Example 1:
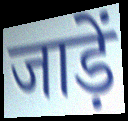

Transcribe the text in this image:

जाड़ें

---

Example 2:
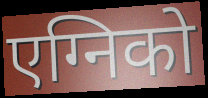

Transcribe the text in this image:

एग्निको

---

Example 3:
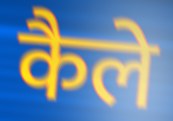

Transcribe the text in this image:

कैले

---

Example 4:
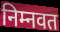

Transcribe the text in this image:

निम्नवत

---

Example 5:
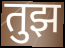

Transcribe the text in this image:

तुझ